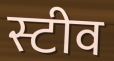
स्‍टीव